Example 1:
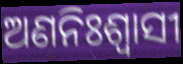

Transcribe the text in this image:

ଅଣନିଃଶ୍ଵାସୀ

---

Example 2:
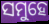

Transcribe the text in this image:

ସମୁହେ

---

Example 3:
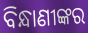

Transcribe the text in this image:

ବିନ୍ଧାଣୀଙ୍କର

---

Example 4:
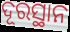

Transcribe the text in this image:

ଦୂରସ୍ଥାନ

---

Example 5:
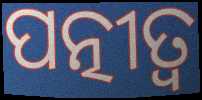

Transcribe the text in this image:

ପତ୍ନୀତ୍ୱ